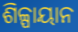
ଶିଳ୍ପାୟାନ